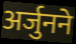
अर्जुनने